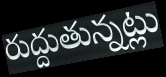
రుద్దుతున్నట్లు